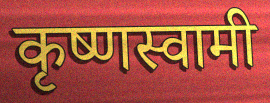
कृष्णस्वामी